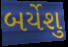
બર્યેશુ